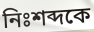
নিঃশব্দকে